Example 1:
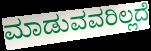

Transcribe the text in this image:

ಮಾಡುವವರಿಲ್ಲದೆ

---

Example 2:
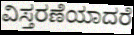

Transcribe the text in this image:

ವಿಸ್ತರಣೆಯಾದರೆ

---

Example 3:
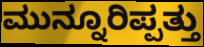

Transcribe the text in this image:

ಮುನ್ನೂರಿಪ್ಪತ್ತು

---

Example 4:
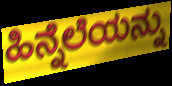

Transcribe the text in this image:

ಹಿನ್ನೆಲೆಯನ್ನು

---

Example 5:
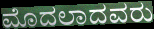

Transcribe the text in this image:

ಮೊದಲಾದವರು